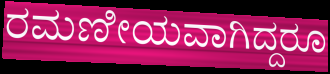
ರಮಣೀಯವಾಗಿದ್ದರೂ